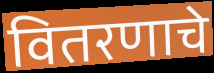
वितरणाचे